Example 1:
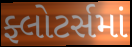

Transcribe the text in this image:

ફ્લોટર્સમાં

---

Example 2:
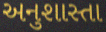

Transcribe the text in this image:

અનુશાસ્તા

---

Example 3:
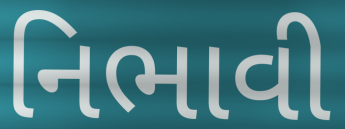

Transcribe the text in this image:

નિભાવી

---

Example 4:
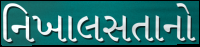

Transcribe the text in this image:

નિખાલસતાનો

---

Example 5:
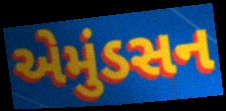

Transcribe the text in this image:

એમુંડસન